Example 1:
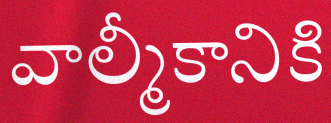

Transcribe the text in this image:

వాల్మీకానికి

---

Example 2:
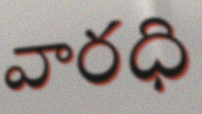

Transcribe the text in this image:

వారధి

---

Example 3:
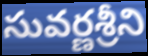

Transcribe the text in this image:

సువర్ణశ్రీని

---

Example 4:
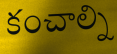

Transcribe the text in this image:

కంచాల్ని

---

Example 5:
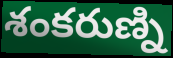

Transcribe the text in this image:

శంకరుణ్ని